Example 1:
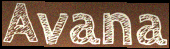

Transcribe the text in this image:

Avana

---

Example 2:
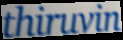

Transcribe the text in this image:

thiruvin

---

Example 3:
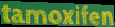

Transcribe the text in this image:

tamoxifen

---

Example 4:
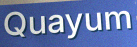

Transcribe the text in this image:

Quayum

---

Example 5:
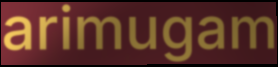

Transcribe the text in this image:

arimugam